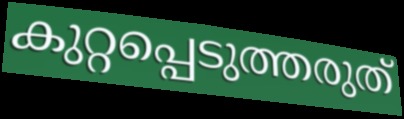
കുറ്റപ്പെടുത്തരുത്